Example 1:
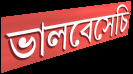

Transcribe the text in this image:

ভালবেসেচি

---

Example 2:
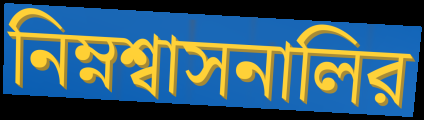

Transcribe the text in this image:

নিম্নশ্বাসনালির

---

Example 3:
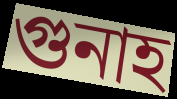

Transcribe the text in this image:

গুনাহ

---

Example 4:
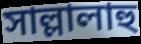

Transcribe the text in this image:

সাল্লালাহু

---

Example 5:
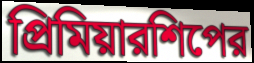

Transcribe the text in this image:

প্রিমিয়ারশিপের